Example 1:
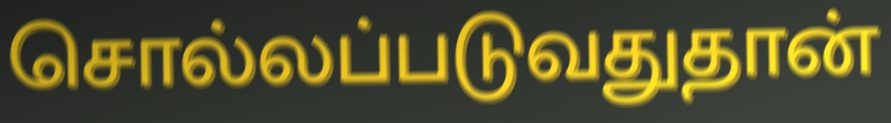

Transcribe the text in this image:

சொல்லப்படுவதுதான்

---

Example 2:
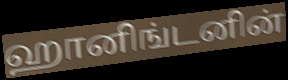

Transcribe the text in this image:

ஹானிங்டனின்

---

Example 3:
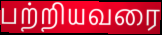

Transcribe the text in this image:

பற்றியவரை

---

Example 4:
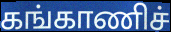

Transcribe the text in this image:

கங்காணிச்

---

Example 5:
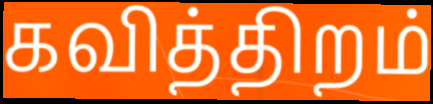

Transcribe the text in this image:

கவித்திறம்